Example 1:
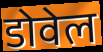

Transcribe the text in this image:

डोवेल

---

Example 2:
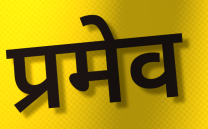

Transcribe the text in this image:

प्रमेव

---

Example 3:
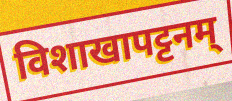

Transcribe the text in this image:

विशाखापट्टनम्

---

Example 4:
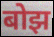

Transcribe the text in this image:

बोझ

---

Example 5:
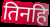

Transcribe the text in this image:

तिनहि